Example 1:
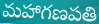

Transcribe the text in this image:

మహాగణపతి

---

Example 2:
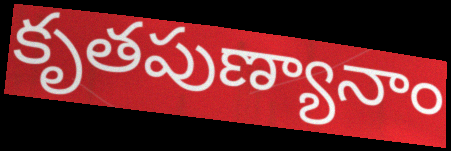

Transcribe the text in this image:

కృతపుణ్యానాం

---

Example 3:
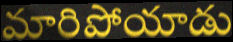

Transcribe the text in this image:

మారిపోయాడు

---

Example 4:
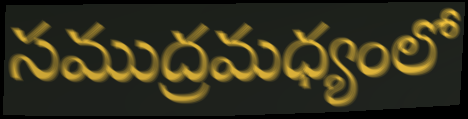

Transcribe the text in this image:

సముద్రమధ్యంలో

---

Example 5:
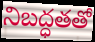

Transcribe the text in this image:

నిబద్ధతతో